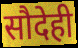
सौदेही